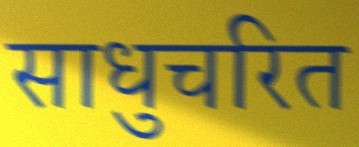
साधुचरित